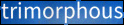
trimorphous